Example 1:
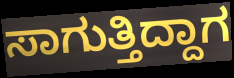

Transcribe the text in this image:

ಸಾಗುತ್ತಿದ್ದಾಗ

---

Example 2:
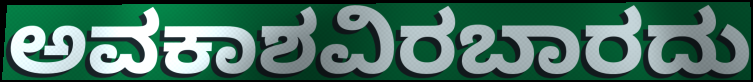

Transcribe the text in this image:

ಅವಕಾಶವಿರಬಾರದು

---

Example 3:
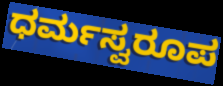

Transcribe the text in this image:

ಧರ್ಮಸ್ವರೂಪ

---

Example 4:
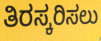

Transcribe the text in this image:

ತಿರಸ್ಕರಿಸಲು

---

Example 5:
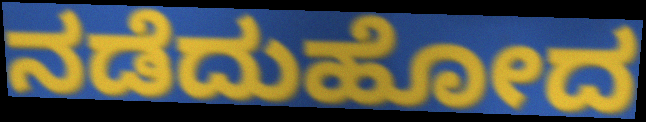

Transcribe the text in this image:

ನಡೆದುಹೋದ